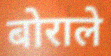
बोराले